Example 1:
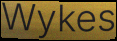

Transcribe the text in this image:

Wykes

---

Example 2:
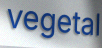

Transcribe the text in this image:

vegetal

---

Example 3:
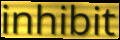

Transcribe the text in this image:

inhibit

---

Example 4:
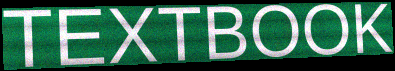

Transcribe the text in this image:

TEXTBOOK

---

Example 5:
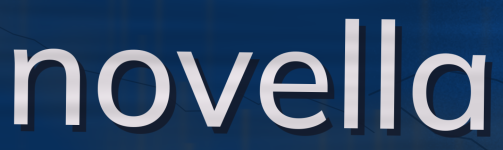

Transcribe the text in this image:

novella